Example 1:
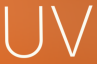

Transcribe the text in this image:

UV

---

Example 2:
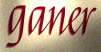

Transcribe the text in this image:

ganer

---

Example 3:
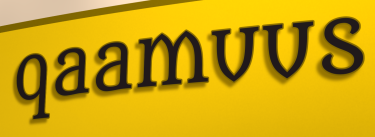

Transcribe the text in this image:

qaamuus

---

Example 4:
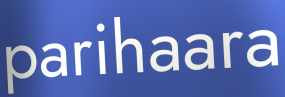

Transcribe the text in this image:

parihaara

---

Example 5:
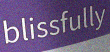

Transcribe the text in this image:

blissfully